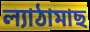
ল্যাঠামাছ